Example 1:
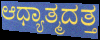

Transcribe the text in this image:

ಆಧ್ಯಾತ್ಮದತ್ತ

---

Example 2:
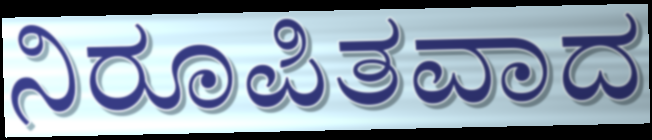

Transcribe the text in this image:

ನಿರೂಪಿತವಾದ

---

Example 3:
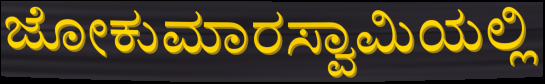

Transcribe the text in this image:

ಜೋಕುಮಾರಸ್ವಾಮಿಯಲ್ಲಿ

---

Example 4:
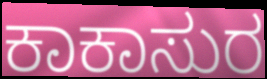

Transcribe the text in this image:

ಕಾಕಾಸುರ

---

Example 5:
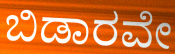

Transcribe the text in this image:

ಬಿಡಾರವೇ